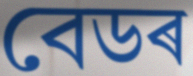
বেডৰ